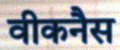
वीकनैस